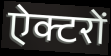
ऐक्टरों